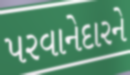
પરવાનેદારને